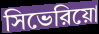
সিভেরিয়ো